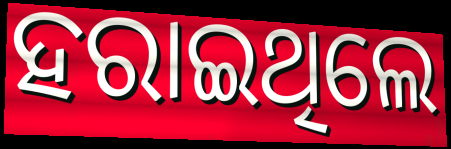
ହରାଇଥିଲେ